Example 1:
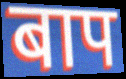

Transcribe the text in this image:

बाप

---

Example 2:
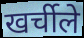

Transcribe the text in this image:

खर्चीले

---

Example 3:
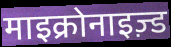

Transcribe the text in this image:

माइक्रोनाइज़्ड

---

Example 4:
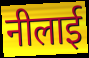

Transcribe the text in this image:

नीलाई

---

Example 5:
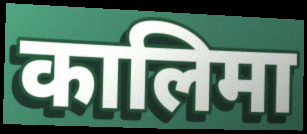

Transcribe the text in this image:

कालिमा